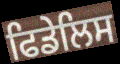
ਫਿਡੇਲਿਸ